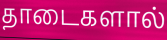
தாடைகளால்